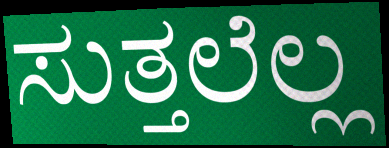
ಸುತ್ತಲೆಲ್ಲ